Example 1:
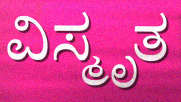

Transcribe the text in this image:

ವಿಸ್ಮೃತ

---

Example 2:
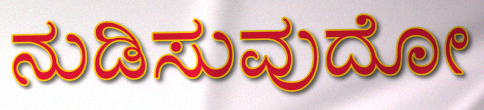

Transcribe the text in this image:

ನುಡಿಸುವುದೋ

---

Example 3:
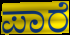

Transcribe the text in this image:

ಪಾರೆ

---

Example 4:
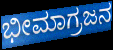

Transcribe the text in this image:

ಭೀಮಾಗ್ರಜನ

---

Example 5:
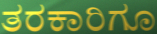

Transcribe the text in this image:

ತರಕಾರಿಗೂ